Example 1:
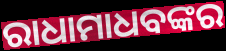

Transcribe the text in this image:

ରାଧାମାଧବଙ୍କର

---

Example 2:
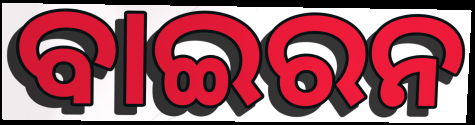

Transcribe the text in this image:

ବାଇରନ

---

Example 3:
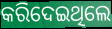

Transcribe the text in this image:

କରିଦେଇଥିଲେ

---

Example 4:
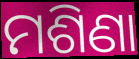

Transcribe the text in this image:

ମଶିଣା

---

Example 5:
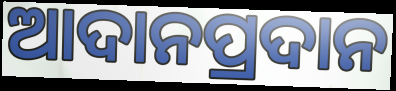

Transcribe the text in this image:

ଆଦାନପ୍ରଦାନ